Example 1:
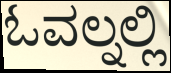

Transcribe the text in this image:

ಓವಲ್ನಲ್ಲಿ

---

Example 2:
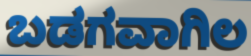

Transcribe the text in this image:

ಬಡಗವಾಗಿಲ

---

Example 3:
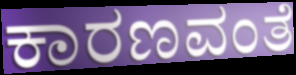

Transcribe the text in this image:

ಕಾರಣವಂತೆ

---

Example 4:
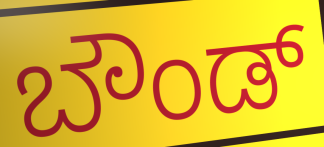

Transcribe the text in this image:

ಬೌಂಡ್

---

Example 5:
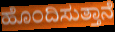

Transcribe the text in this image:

ಹೊಂದಿಸುತ್ತಾನೆ